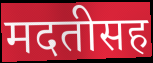
मदतीसह